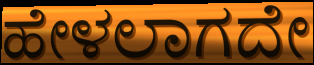
ಹೇಳಲಾಗದೇ